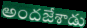
అందజేశాడు